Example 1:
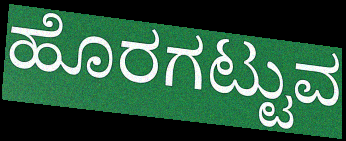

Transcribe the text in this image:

ಹೊರಗಟ್ಟುವ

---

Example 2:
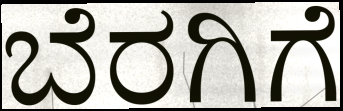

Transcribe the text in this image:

ಬೆರಗಿಗೆ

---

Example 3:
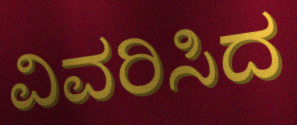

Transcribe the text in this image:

ವಿವರಿಸಿದ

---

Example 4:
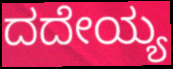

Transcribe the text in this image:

ದದೇಯ್ಯ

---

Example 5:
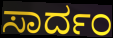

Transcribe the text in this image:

ಸಾರ್ದಂ